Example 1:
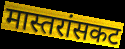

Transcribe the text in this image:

मास्तरांसकट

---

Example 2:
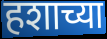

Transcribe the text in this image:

हशाच्या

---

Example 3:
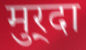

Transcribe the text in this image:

मुर्दा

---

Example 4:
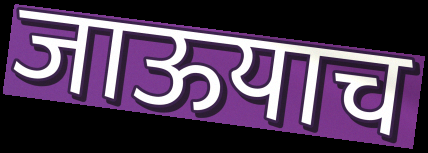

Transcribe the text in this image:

जाऊयाच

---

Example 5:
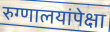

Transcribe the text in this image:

रुग्णालयांपेक्षा